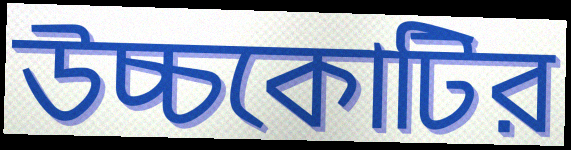
উচ্চকোটির